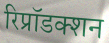
रिप्रॉडक्शन